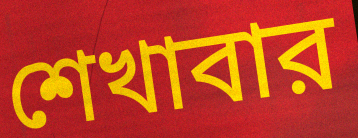
শেখাবার